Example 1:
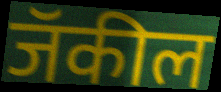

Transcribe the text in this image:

जॅकील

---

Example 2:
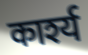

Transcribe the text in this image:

कार्श्य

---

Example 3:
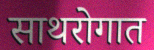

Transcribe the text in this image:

साथरोगात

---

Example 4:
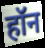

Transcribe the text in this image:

हॉन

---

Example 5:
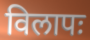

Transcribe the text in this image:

विलापः